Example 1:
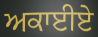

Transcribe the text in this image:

ਅਕਾਈਏ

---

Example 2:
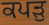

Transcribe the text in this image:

ਕਪੜੁ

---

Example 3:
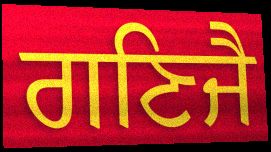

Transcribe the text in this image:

ਗਣਿਜੈ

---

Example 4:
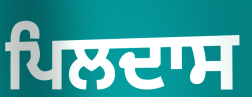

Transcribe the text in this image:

ਪਿਲਦਾਸ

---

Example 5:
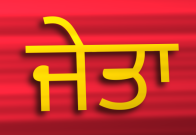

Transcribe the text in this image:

ਜੇਤਾ